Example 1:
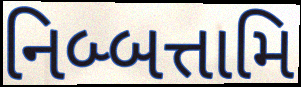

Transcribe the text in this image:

નિબ્બત્તામિ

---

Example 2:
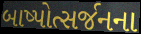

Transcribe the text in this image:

બાષ્પોત્સર્જનના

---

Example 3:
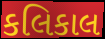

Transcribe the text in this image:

કલિકાલ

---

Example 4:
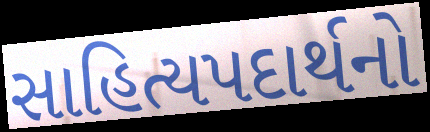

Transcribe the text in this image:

સાહિત્યપદાર્થનો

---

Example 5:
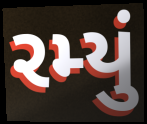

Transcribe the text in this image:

રમ્યું